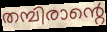
തമ്പിരാന്റെ